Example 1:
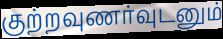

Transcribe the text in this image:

குற்றவுணர்வுடனும்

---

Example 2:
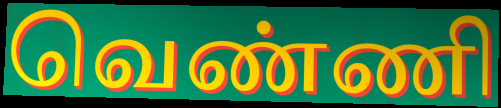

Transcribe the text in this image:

வெண்ணி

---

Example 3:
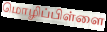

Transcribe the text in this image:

மொழிப்பிள்ளை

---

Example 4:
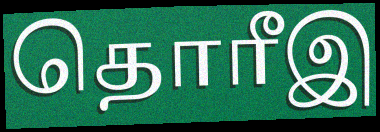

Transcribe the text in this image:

தொரீஇ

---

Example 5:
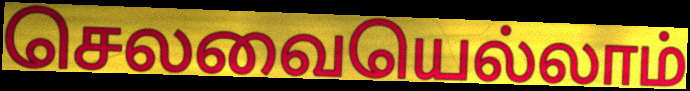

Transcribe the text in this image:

செலவையெல்லாம்